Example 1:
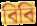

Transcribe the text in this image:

বিবি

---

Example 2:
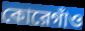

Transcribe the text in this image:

কোরেগাঁও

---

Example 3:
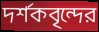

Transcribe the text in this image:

দর্শকবৃন্দের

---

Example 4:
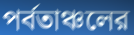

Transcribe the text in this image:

পর্বতাঞ্চলের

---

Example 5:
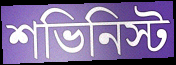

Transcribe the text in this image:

শভিনিস্ট